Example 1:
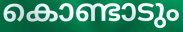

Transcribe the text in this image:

കൊണ്ടാടും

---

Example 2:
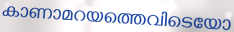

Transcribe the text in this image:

കാണാമറയത്തെവിടെയോ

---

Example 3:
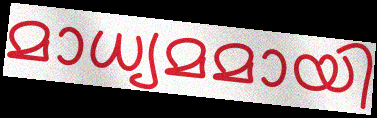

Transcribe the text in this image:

മാധ്യമമായി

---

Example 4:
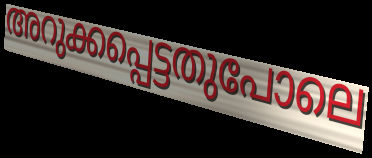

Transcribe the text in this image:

അറുക്കപ്പെട്ടതുപോലെ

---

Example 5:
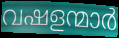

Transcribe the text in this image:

വഷളന്മാർ